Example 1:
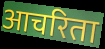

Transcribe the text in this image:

आचरिता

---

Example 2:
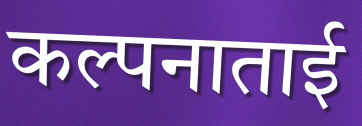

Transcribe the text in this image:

कल्पनाताई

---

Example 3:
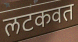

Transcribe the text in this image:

लटकवत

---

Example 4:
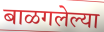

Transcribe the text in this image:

बाळगलेल्या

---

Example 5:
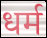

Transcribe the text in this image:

धर्म